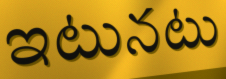
ఇటునటు